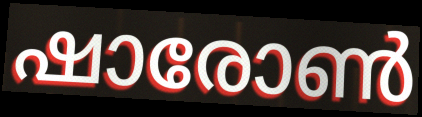
ഷാരോൺ